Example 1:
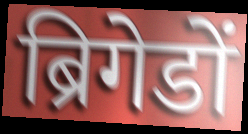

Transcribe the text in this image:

ब्रिगेडों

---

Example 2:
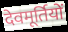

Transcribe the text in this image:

देवमूर्तियों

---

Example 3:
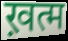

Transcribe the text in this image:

ख़त्‍म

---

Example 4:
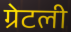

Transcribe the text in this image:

ग्रेटली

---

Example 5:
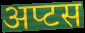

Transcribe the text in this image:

अप्टस